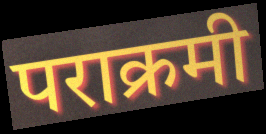
पराक्रमी